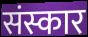
संस्‍कार